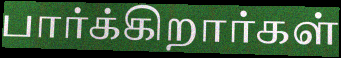
பார்க்கிறார்கள்